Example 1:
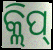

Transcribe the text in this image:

କ୍ଲିପ୍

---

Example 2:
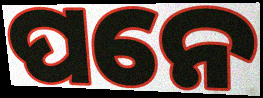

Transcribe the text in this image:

ପନେ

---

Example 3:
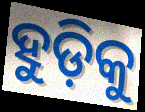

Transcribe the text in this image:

ହୁଡ଼ିକୁ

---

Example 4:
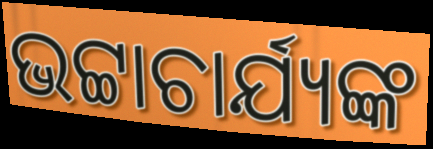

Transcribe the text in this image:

ଭଟ୍ଟାଚାର୍ଯ୍ୟଙ୍କ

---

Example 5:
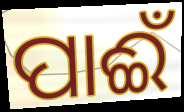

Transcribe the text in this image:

ପାଈଁ